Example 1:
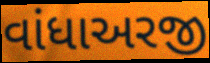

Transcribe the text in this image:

વાંધાઅરજી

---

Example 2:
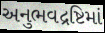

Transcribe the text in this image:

અનુભવદ્રષ્ટિમાં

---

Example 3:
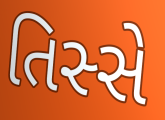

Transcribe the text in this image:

તિસ્સે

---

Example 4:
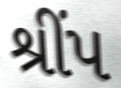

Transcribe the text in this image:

શ્રીંપ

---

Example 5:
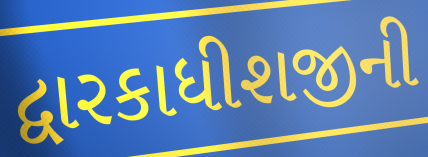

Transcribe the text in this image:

દ્વારકાધીશજીની